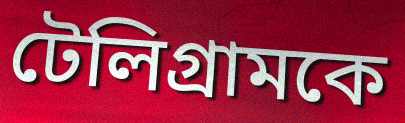
টেলিগ্রামকে